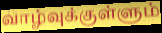
வாழ்வுக்குள்ளும்